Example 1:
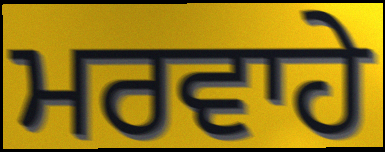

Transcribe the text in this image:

ਮਰਵਾਹੇ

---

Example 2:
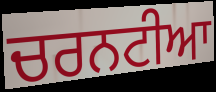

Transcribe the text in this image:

ਚਰਨਟੀਆ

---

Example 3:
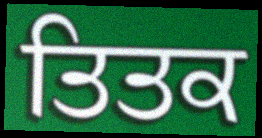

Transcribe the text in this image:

ਤਿਤਕ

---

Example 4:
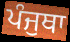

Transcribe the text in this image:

ਪੰਜੁਥਾ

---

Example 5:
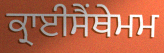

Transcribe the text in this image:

ਕ੍ਰਾਈਸੈਂਥੇਮਮ